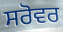
ਸਰੋਵਰ